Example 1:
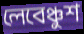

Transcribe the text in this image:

লেবেঞ্চুশ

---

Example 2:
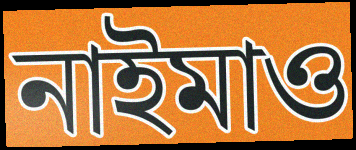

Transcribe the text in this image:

নাইমাও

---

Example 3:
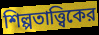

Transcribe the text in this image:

শিল্পতাত্ত্বিকের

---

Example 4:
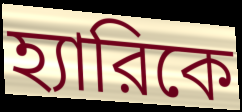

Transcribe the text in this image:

হ্যারিকে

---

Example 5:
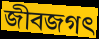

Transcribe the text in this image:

জীবজগৎ